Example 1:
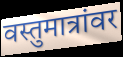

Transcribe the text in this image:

वस्तुमात्रांवर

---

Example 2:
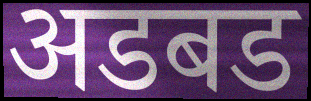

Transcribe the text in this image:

अडबड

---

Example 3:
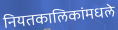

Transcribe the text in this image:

नियतकालिकांमधले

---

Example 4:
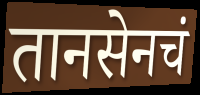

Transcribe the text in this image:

तानसेनचं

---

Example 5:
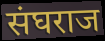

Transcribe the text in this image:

संघराज